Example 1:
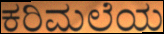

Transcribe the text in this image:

ಕರಿಮಲೆಯ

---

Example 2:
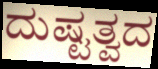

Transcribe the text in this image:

ದುಷ್ಟತ್ವದ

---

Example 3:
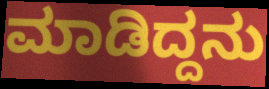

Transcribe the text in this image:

ಮಾಡಿದ್ದನು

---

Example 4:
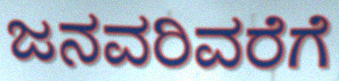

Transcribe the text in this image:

ಜನವರಿವರೆಗೆ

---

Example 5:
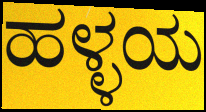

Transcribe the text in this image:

ಹಳ್ಳಯ